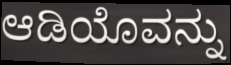
ಆಡಿಯೊವನ್ನು